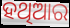
ହଥିଆର